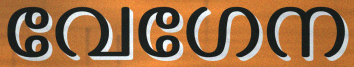
വേഗേന